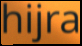
hijra